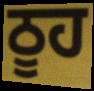
ਠੂਹ